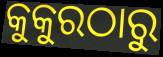
କୁକୁରଠାରୁ